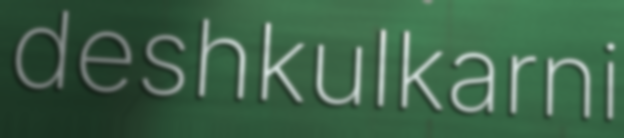
deshkulkarni